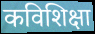
कविशिक्षा